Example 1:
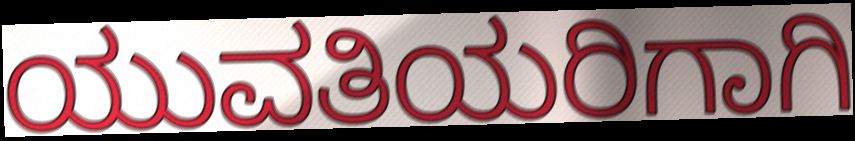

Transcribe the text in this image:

ಯುವತಿಯರಿಗಾಗಿ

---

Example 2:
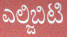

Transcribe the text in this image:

ಎಲ್ಜಿಬಿಟಿ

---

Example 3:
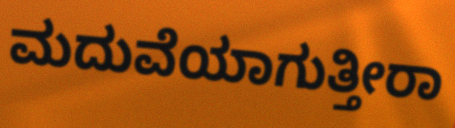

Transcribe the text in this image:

ಮದುವೆಯಾಗುತ್ತೀರಾ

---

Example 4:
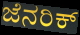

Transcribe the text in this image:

ಜೆನರಿಕ್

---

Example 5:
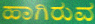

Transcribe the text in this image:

ಹಾಗಿರುವ